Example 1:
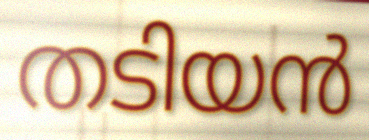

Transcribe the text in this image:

തടിയൻ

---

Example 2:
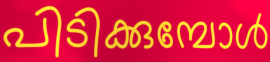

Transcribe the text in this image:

പിടിക്കുമ്പോൾ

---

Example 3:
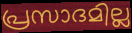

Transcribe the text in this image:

പ്രസാദമില്ല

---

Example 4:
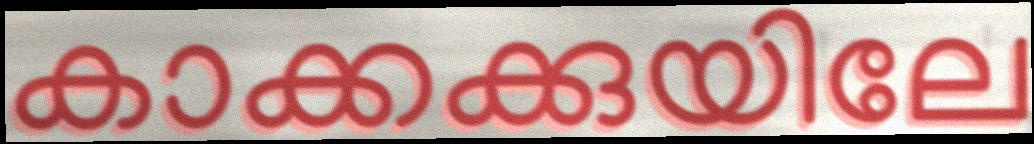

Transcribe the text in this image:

കാക്കക്കുയിലേ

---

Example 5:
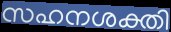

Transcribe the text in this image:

സഹനശക്തി